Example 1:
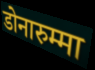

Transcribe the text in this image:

डोनारुम्मा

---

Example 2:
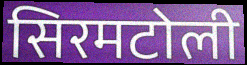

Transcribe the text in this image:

सिरमटोली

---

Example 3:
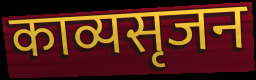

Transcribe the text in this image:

काव्यसृजन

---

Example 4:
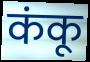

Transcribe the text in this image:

कंकू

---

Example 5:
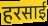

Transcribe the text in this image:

हरसाई